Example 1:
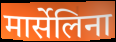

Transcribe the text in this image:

मार्सेलिना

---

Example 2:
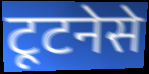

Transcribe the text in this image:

टूटनेसे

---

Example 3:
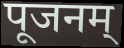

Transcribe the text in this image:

पूजनम्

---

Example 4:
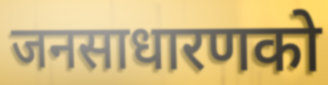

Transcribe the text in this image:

जनसाधारणको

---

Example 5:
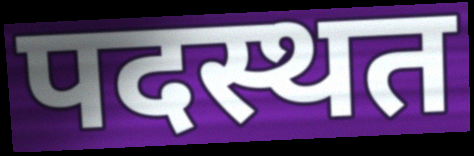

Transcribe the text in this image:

पदस्थत